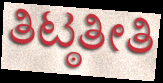
ತಿಟ್ಠತೀತಿ